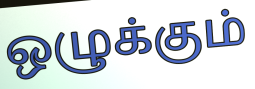
ஒழுக்கும்